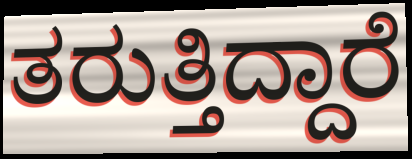
ತರುತ್ತಿದ್ದಾರೆ